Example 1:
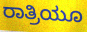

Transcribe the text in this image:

ರಾತ್ರಿಯೂ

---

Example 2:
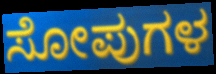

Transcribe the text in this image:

ಸೋಪುಗಳ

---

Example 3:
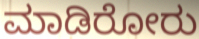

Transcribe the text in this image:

ಮಾಡಿರೋರು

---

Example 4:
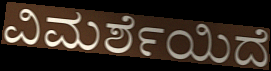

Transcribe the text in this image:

ವಿಮರ್ಶೆಯಿದೆ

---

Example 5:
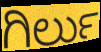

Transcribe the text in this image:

ಗಿರ್ಲು